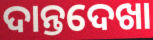
ଦାନ୍ତଦେଖା